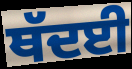
ਥੱਦਈ